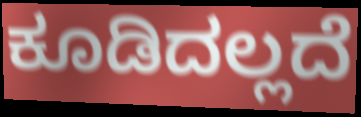
ಕೂಡಿದಲ್ಲದೆ